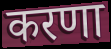
करणा